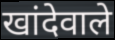
खांदेवाले